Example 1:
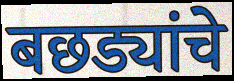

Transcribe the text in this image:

बछड्यांचे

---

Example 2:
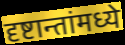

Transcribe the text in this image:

दृष्टान्तांमध्ये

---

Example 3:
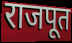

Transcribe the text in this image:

राजपूत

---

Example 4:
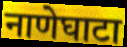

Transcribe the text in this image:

नाणेघाटा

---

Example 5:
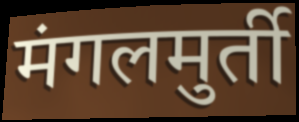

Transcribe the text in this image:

मंगलमुर्ती